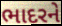
ભાદરને